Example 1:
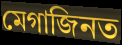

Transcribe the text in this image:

মেগাজিনত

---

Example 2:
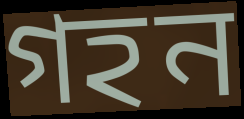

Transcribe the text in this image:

গহন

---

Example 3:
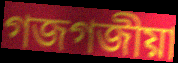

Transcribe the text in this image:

গজগজীয়া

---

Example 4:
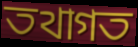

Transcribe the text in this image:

তথাগত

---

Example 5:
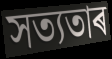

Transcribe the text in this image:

সত্যতাৰ